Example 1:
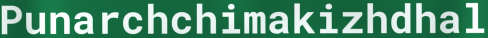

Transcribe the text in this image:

Punarchchimakizhdhal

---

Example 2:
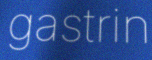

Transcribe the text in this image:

gastrin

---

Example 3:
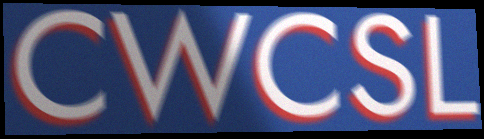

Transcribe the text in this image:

CWCSL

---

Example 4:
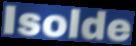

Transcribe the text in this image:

Isolde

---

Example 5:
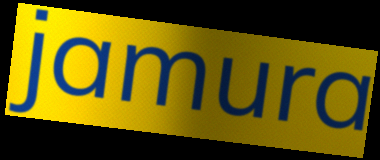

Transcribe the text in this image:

jamura